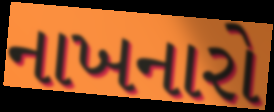
નાખનારો